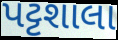
પટ્ટશાલા